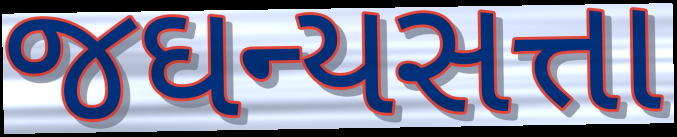
જઘન્યસત્તા